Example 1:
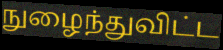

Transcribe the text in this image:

நுழைந்துவிட்ட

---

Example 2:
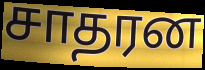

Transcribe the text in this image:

சாதரன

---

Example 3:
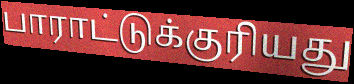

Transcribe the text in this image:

பாராட்டுக்குரியது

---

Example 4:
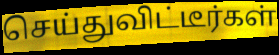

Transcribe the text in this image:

செய்துவிட்டீர்கள்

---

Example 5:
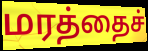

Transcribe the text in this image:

மரத்தைச்